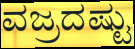
ವಜ್ರದಷ್ಟು